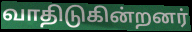
வாதிடுகின்றனர்